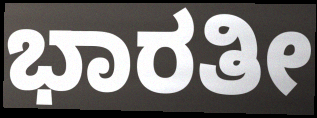
ಭಾರತೀ